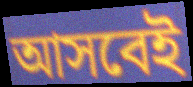
আসবেই